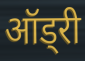
ऑड्री